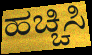
ಹಚ್ಚಿಸಿ